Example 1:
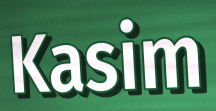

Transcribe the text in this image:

Kasim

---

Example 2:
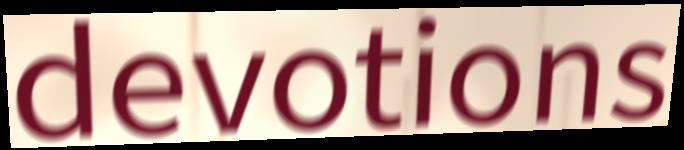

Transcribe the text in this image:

devotions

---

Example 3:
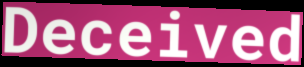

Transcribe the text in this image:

Deceived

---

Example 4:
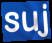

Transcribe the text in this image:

suj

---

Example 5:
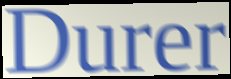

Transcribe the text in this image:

Durer